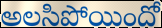
అలసిపోయిందో